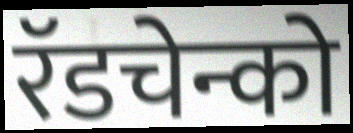
रॅडचेन्को